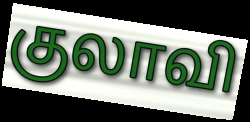
குலாவி